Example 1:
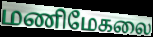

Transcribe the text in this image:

மணிமேகலை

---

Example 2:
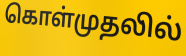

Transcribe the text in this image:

கொள்முதலில்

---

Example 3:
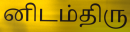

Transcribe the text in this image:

னிடம்திரு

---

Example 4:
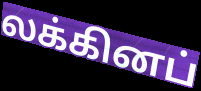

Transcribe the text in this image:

லக்கினப்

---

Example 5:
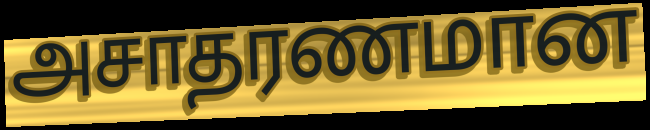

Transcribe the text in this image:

அசாதரணமான